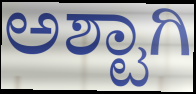
ಅಶ್ಟಾಗಿ